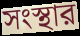
সংস্থার